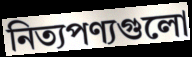
নিত্যপণ্যগুলো